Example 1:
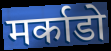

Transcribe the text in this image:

मर्काडो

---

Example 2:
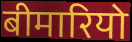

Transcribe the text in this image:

बीमारियो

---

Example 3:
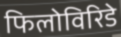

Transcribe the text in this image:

फिलोविरिडे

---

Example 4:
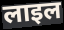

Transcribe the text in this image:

लाइल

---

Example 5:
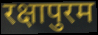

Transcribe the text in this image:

रक्षापुरम